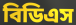
বিডিএস